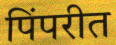
पिंपरीत